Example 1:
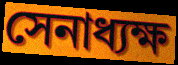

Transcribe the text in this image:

সেনাধ্যক্ষ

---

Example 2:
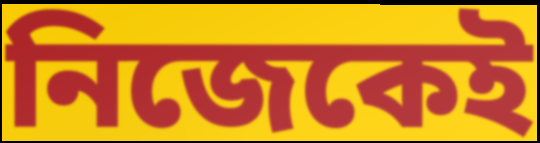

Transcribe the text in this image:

নিজেকেই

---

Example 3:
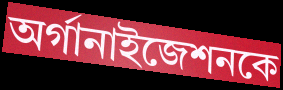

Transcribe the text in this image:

অর্গানাইজেশনকে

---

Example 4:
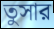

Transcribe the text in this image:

তুসার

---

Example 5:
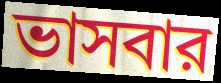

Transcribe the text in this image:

ভাসবার